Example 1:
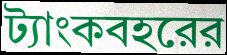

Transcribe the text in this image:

ট্যাংকবহরের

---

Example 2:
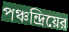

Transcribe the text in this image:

পঞ্চন্দ্রিয়ের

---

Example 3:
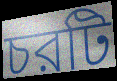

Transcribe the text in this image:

চরটি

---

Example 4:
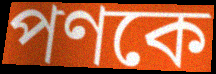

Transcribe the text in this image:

পণকে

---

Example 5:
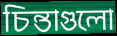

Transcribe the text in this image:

চিন্তাগুলো